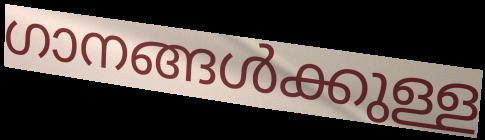
ഗാനങ്ങൾക്കുള്ള